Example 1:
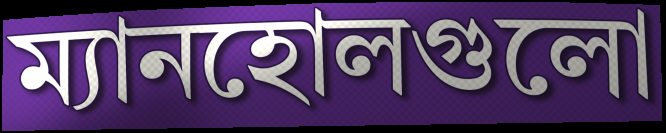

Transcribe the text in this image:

ম্যানহোলগুলো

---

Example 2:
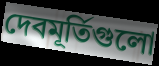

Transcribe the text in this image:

দেবমূর্তিগুলো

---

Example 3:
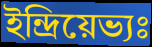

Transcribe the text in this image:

ইন্দ্রিয়েভ্যঃ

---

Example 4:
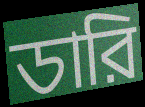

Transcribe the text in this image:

ডারি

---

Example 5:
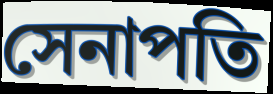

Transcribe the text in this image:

সেনাপতি